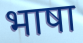
भाषा